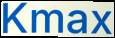
Kmax